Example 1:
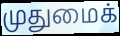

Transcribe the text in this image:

முதுமைக்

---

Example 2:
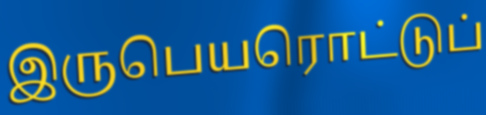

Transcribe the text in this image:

இருபெயரொட்டுப்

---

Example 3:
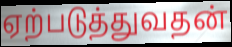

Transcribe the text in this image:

ஏற்படுத்துவதன்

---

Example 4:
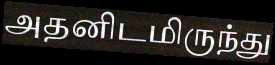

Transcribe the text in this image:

அதனிடமிருந்து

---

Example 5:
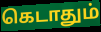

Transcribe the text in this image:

கெடாதும்